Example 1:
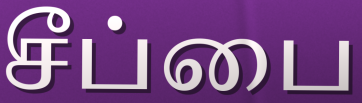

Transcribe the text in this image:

சீப்பை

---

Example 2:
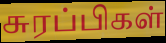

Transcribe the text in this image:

சுரப்பிகள்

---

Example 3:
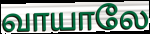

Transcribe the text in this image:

வாயாலே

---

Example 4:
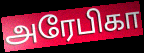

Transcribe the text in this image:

அரேபிகா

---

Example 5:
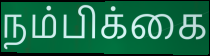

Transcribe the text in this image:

நம்பிக்கை